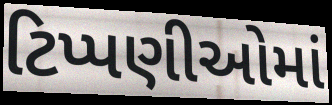
ટિપ્પણીઓમાં